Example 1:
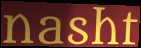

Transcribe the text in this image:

nasht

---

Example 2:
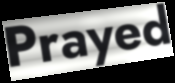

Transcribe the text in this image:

Prayed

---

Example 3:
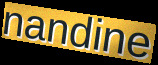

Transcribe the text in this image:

nandine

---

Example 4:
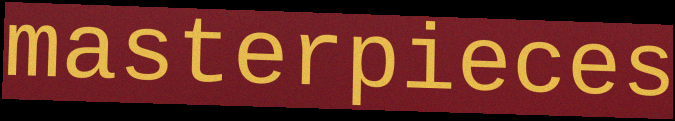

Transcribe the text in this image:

masterpieces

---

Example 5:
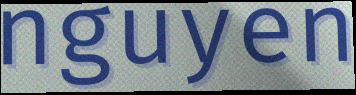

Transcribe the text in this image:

nguyen